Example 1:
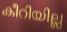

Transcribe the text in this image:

കീറിയില്ല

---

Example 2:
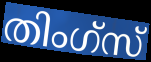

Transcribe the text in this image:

തിംഗ്സ്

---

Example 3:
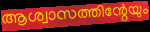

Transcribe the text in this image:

ആശ്വാസത്തിന്റേയും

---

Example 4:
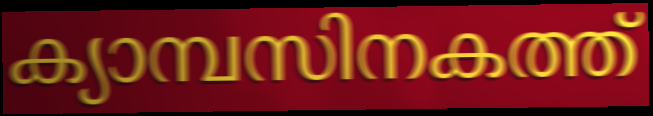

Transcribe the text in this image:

ക്യാമ്പസിനകത്ത്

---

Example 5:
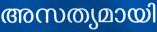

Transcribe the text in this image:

അസത്യമായി